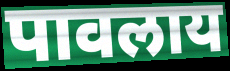
पावलाय